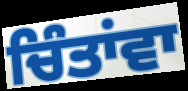
ਚਿੰਤਾਂਵਾ